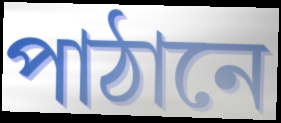
পাঠানে